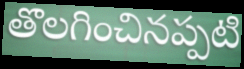
తొలగించినప్పటి